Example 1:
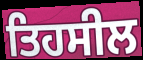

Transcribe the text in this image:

ਤਿਹਸੀਲ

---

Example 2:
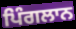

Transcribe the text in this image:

ਪਿੰਗਲਾਨ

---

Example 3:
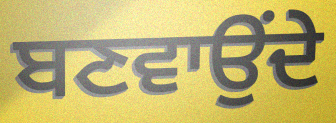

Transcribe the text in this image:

ਬਣਵਾਉਂਦੇ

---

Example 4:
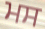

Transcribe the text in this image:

ਮਸ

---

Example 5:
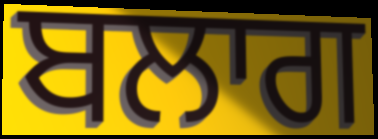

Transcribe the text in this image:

ਬਲਾਗ